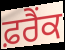
ਫ਼ਰੈਂਕ